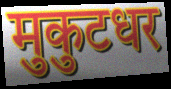
मुकुटधर